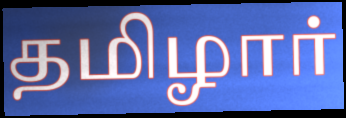
தமிழார்